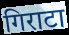
गिराटा